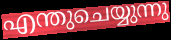
എന്തുചെയ്യുന്നു